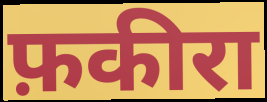
फ़कीरा